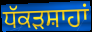
ਧੱਕੜਸ਼ਾਹਾਂ